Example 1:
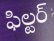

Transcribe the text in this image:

ఫిల్టర్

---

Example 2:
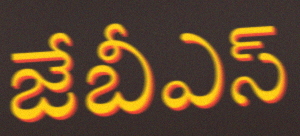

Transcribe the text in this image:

జేబీఎస్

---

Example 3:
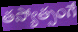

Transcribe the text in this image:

తస్యోత్సంగే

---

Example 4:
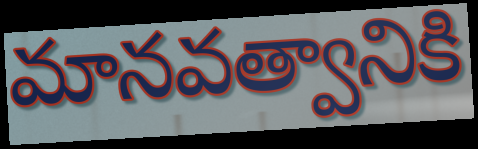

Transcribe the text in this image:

మానవత్వానికి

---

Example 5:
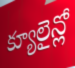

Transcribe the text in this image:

క్యూలైన్లో